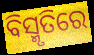
ବିସ୍ମୃତିରେ